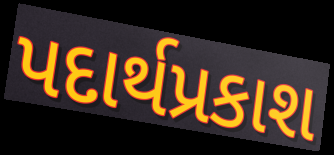
પદાર્થપ્રકાશ